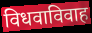
विधवाविवाह